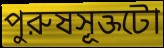
পুৰুষসূক্তটো